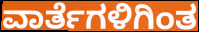
ವಾರ್ತೆಗಳಿಗಿಂತ